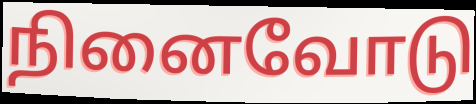
நினைவோடு